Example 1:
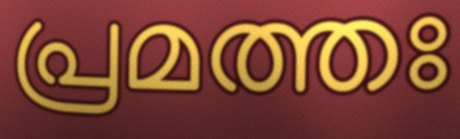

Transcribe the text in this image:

പ്രമത്തഃ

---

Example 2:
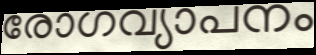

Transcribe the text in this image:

രോഗവ്യാപനം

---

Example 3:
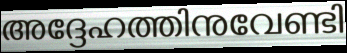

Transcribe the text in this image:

അദ്ദേഹത്തിനുവേണ്ടി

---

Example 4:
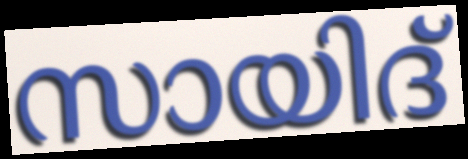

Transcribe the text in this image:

സായിദ്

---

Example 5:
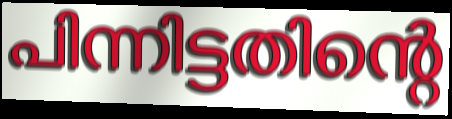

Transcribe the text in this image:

പിന്നിട്ടതിന്റെ